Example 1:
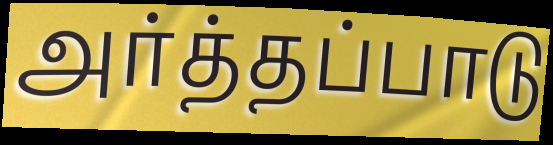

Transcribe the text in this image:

அர்த்தப்பாடு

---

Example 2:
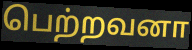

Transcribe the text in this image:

பெற்றவனா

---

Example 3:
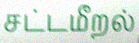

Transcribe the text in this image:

சட்டமீறல்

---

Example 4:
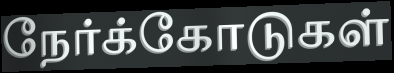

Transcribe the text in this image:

நேர்க்கோடுகள்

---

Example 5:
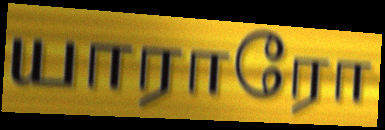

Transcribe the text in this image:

யாராரோ